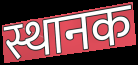
स्थानक